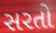
સરતો